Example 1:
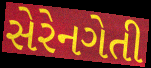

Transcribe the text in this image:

સેરેનગેતી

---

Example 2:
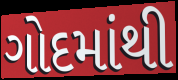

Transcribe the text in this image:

ગોદમાંથી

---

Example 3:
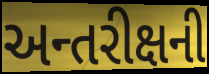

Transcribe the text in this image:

અન્તરીક્ષની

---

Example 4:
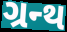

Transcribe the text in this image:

ગ્રન્થ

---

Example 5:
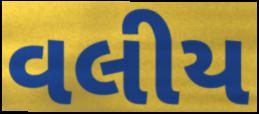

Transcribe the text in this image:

વલીય